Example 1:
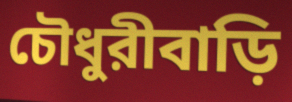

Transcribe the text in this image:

চৌধুরীবাড়ি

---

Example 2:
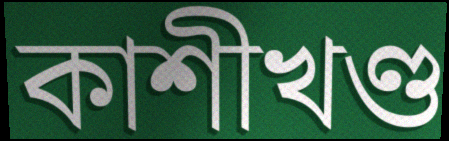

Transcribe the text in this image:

কাশীখণ্ড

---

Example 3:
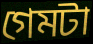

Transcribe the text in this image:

গেমটা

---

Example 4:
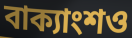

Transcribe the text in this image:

বাক্যাংশও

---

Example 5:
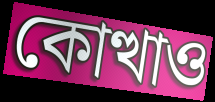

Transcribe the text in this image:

কোত্থাও